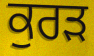
ਕੁਰੜ